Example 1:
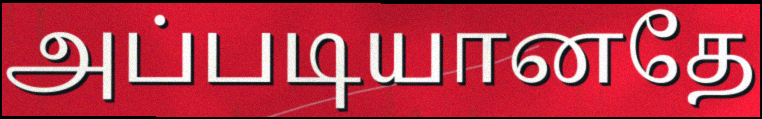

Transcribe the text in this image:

அப்படியானதே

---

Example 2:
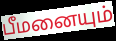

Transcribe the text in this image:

பீமனையும்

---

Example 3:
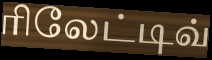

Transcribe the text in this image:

ரிலேட்டிவ்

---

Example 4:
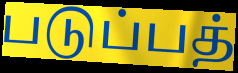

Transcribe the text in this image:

படுப்பத்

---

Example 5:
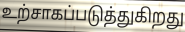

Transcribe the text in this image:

உற்சாகப்படுத்துகிறது